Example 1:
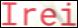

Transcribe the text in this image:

Irei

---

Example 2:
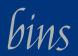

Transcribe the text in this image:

bins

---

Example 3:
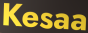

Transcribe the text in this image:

Kesaa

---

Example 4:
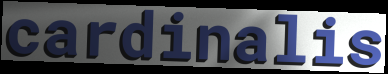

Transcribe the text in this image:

cardinalis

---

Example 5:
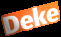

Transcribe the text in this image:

Deke